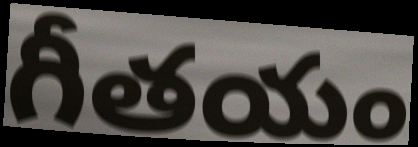
గీతయం